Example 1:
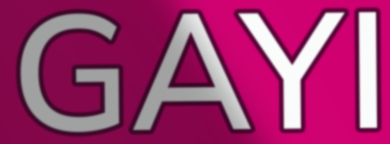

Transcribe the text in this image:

GAYI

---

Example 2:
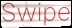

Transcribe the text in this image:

Swipe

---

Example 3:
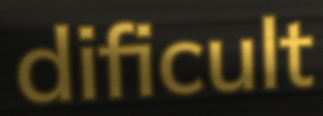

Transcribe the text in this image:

dificult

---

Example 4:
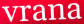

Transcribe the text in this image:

vrana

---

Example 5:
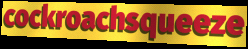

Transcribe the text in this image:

cockroachsqueeze